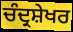
ਚੰਦ੍ਰਸ਼ੇਖਰ